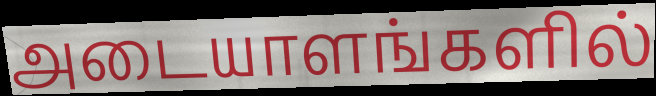
அடையாளங்களில்